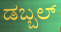
ಡಬ್ಬಲ್